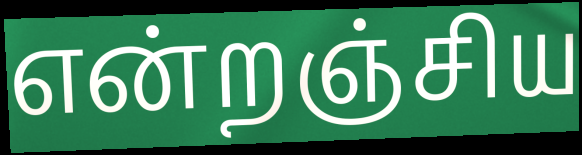
என்றஞ்சிய